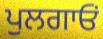
ਪੁਲਗਾਓਂ